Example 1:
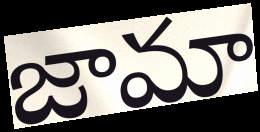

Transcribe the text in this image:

జామా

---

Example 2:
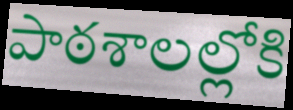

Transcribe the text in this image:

పాఠశాలల్లోకి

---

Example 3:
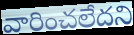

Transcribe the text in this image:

వారించలేదని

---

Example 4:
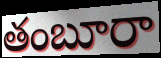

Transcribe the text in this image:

తంబూరా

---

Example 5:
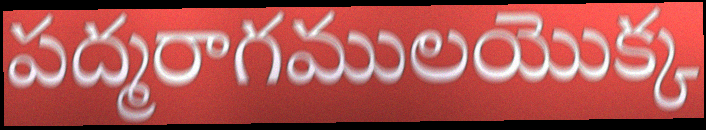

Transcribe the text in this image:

పద్మరాగములయొక్క